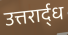
उत्तरार्द्ध